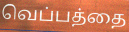
வெப்பத்தை